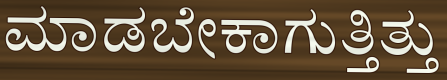
ಮಾಡಬೇಕಾಗುತ್ತಿತ್ತು